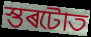
স্তৰটোত